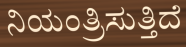
ನಿಯಂತ್ರಿಸುತ್ತಿದೆ